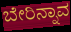
ಬೇರಿನ್ನಾವ